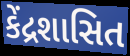
કેંદ્રશાસિત